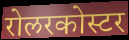
रोलरकोस्टर